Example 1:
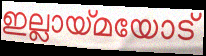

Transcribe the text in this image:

ഇല്ലായ്മയോട്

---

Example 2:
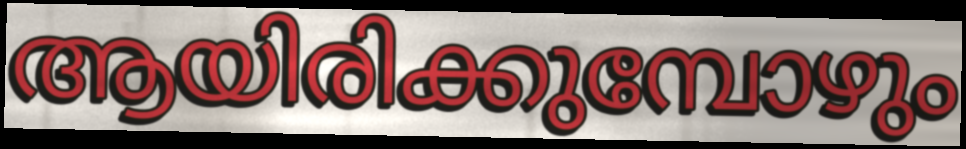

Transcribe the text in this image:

ആയിരിക്കുമ്പോഴും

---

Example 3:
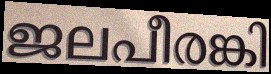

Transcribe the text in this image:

ജലപീരങ്കി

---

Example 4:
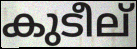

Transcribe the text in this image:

കുടീല്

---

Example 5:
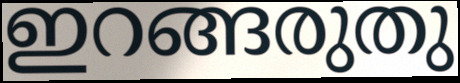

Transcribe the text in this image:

ഇറങ്ങരുതു